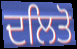
ਦਲਿਤੋ